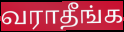
வராதீங்க